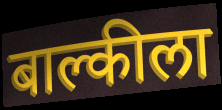
बाल्कीला